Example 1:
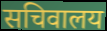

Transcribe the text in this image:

सचिवालय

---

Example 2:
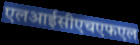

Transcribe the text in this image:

एलआईसीएचएफएल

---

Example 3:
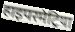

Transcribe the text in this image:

हाइपरमेट्रिया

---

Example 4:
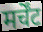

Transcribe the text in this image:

मर्चेंट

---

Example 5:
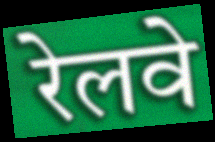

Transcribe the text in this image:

रेलवे